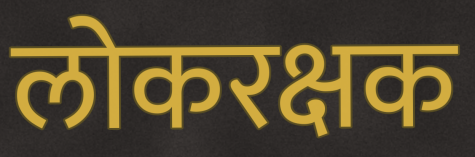
लोकरक्षक